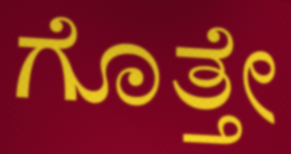
ಗೊತ್ತೇ